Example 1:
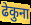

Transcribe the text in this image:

ढेकुना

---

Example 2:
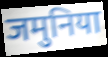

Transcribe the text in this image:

जमुनिया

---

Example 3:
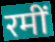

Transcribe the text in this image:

रमीं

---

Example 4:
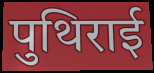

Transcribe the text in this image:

पुथिराई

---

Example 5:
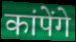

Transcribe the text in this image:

कांपेंगे